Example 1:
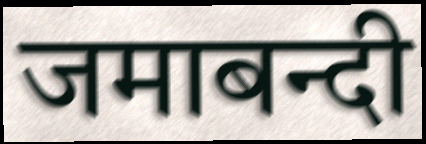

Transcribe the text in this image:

जमाबन्दी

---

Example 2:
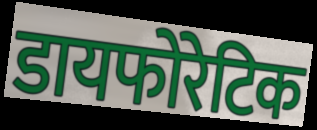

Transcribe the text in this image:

डायफोरेटिक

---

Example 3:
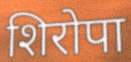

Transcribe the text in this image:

शिरोपा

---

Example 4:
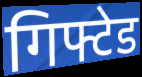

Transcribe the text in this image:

गिफ्टेड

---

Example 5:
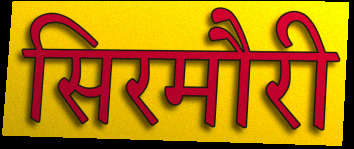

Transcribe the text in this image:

सिरमौरी